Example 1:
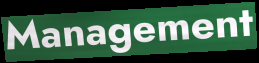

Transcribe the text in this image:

Management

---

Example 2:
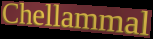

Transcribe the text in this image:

Chellammal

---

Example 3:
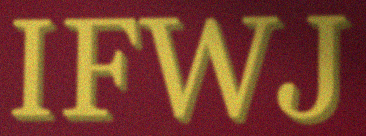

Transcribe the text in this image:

IFWJ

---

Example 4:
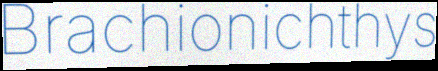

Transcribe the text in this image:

Brachionichthys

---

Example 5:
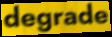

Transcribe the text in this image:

degrade